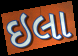
ઇલા